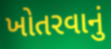
ખોતરવાનું